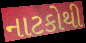
નાટકોથી